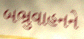
બભ્રુવાહનને